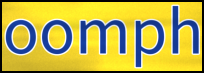
oomph